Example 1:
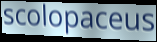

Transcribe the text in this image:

scolopaceus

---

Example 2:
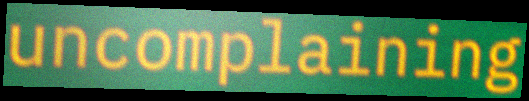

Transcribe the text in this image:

uncomplaining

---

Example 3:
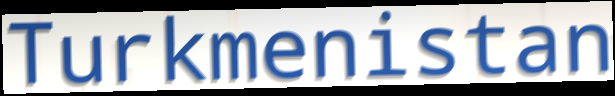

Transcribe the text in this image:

Turkmenistan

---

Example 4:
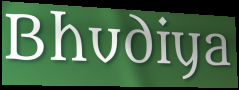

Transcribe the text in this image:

Bhudiya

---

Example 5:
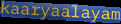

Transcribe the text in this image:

kaaryaalayam